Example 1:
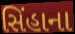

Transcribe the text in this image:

સિંહાના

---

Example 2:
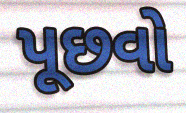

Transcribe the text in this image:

પૂછવો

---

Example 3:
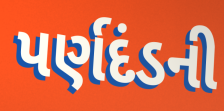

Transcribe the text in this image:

પર્ણદંડની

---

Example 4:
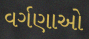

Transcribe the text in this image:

વર્ગણાઓ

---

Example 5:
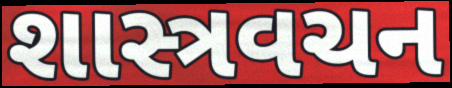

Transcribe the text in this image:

શાસ્ત્રવચન